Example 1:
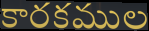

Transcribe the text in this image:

కారకముల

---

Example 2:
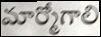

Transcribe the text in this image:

మార్మోగాలి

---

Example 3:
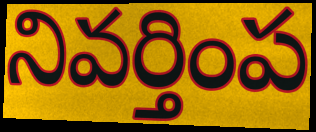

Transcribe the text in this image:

నివర్తింప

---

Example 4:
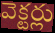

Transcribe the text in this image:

వెక్టర్లు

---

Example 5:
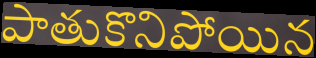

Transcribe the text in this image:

పాతుకొనిపోయిన